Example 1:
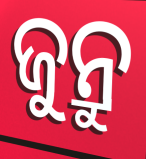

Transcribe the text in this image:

ଜୁନ୍ରୁ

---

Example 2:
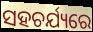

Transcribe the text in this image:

ସହଚର୍ଯ୍ୟରେ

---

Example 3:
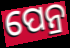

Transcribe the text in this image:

ପେନ୍ର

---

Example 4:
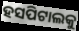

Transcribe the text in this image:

ହସପିଟାଲକୁ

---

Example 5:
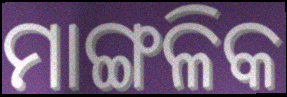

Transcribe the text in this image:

ମାଙ୍ଗଳିକ